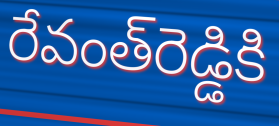
రేవంత్‌రెడ్డికి